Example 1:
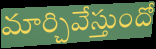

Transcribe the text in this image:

మార్చివేస్తుందో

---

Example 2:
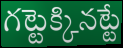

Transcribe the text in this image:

గట్టెక్కినట్టే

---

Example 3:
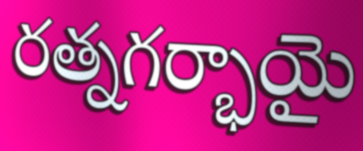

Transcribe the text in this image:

రత్నగర్భాయై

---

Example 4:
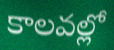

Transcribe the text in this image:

కాలవల్లో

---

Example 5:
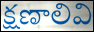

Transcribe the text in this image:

క్షణాలివి